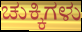
ಚುಕ್ಕಿಗಳು